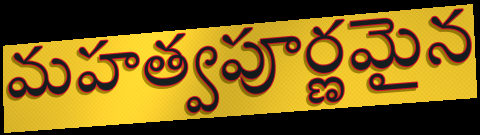
మహత్వపూర్ణమైన